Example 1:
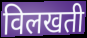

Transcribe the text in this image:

विलखती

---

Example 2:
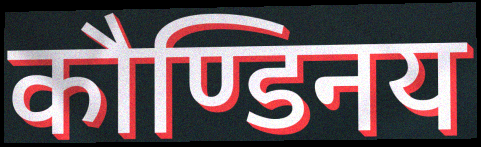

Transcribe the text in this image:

कौण्डिनय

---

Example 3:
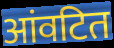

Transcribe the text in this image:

आंवटित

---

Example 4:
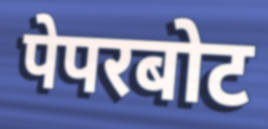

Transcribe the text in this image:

पेपरबोट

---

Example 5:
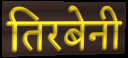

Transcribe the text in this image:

तिरबेनी